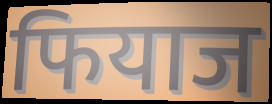
फियाज